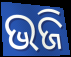
ଭଜି